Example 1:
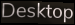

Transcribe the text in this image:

Desktop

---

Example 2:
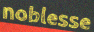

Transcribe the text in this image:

noblesse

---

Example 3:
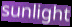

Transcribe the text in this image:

sunlight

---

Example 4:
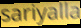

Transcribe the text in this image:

sariyalla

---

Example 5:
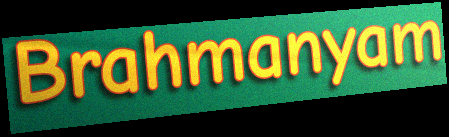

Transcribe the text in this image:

Brahmanyam